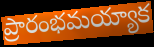
ప్రారంభమయ్యాక